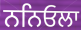
ਨਨਿਓਲਾ